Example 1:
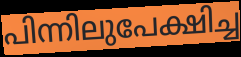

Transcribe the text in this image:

പിന്നിലുപേക്ഷിച്ച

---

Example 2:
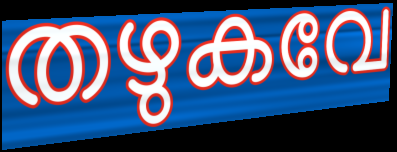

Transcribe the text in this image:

തഴുകവേ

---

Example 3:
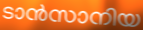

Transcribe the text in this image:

ടാൻസാനിയ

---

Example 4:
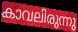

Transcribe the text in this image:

കാവലിരുന്നു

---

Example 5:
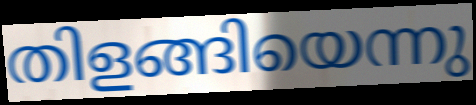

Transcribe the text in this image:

തിളങ്ങിയെന്നു